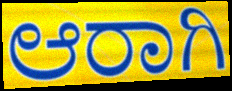
ಆರಾಗಿ